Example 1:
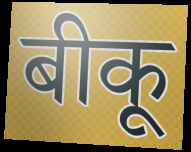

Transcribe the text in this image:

बीकू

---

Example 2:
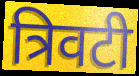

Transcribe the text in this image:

त्रिवटी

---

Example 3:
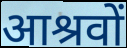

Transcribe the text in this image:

आश्रवों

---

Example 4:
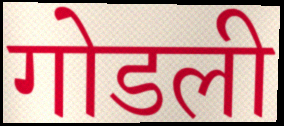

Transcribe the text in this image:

गोडली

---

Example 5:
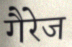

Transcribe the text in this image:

गैरेज